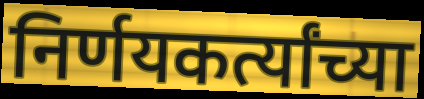
निर्णयकर्त्यांच्या